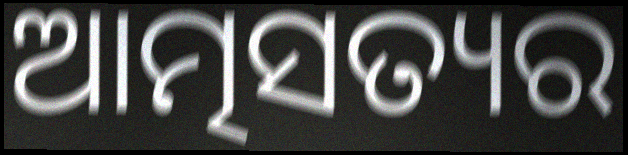
ଆତ୍ମସତ୍ୟର